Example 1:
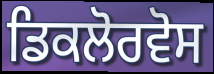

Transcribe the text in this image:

ਡਿਕਲੋਰਵੋਸ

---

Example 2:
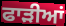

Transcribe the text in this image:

ਫਾੜੀਆਂ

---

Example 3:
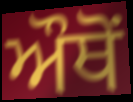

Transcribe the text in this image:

ਔਥੋਂ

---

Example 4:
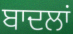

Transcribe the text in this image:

ਬਾਦਲਾਂ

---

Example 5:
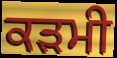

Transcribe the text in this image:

ਕੜਮੀ